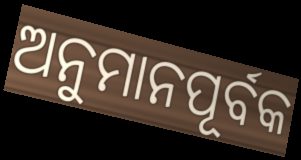
ଅନୁମାନପୂର୍ବକ